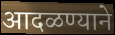
आदळण्याने